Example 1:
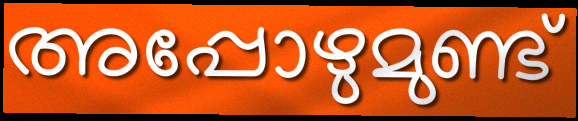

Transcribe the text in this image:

അപ്പോഴുമുണ്ട്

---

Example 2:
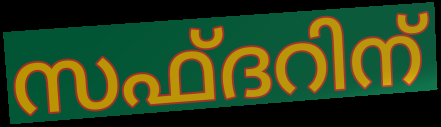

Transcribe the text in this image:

സഫ്ദറിന്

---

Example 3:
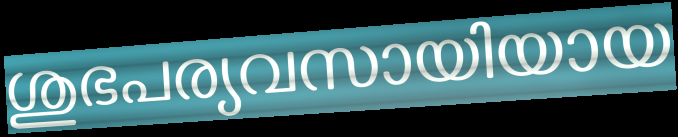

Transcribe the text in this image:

ശുഭപര്യവസായിയായ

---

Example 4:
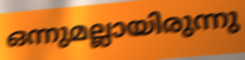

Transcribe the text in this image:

ഒന്നുമല്ലായിരുന്നു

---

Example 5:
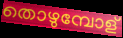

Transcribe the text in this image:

തൊഴുമ്പോള്